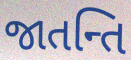
જાતન્તિ